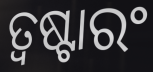
ତ୍ୱଷ୍ଟାରଂ